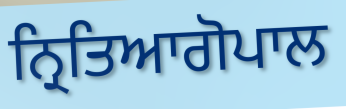
ਨ੍ਰਿਤਿਆਗੋਪਾਲ